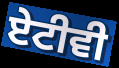
ਏਟੀਵੀ